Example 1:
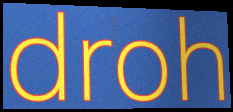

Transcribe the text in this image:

droh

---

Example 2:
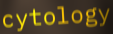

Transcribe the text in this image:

cytology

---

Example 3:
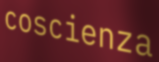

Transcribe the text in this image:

coscienza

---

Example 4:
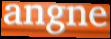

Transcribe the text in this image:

angne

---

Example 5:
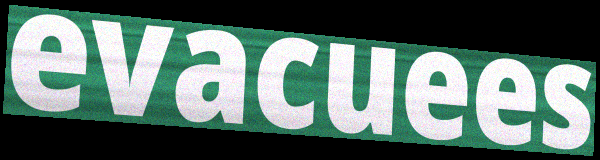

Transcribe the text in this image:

evacuees